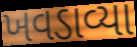
ખવડાવ્યા